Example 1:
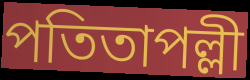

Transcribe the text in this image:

পতিতাপল্লী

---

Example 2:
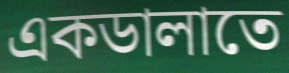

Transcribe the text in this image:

একডালাতে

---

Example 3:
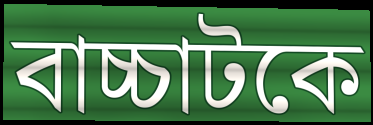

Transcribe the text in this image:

বাচ্চাটকে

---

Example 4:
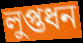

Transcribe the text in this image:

লুপ্তধন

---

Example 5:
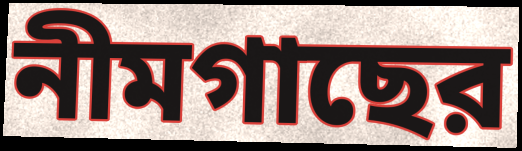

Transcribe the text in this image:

নীমগাছের